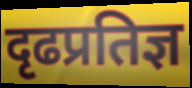
दृढप्रतिज्ञ